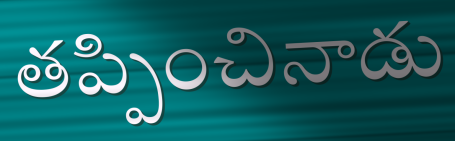
తప్పించినాడు